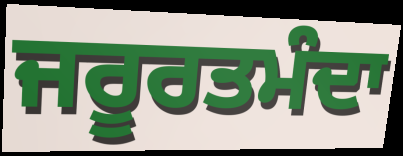
ਜਰੂਰਤਮੰਦਾ